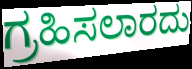
ಗ್ರಹಿಸಲಾರದು